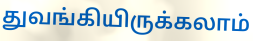
துவங்கியிருக்கலாம்